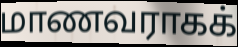
மாணவராகக்